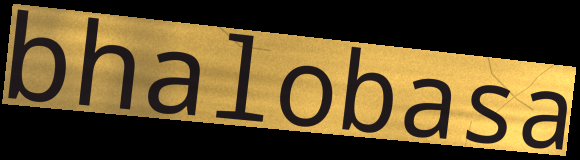
bhalobasa